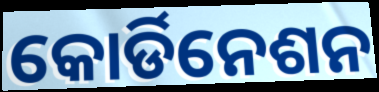
କୋର୍ଡିନେଶନ